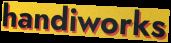
handiworks